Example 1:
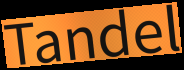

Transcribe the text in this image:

Tandel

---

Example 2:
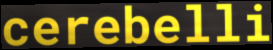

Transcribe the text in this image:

cerebelli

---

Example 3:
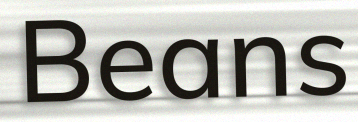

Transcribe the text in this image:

Beans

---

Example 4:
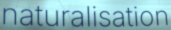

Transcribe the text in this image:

naturalisation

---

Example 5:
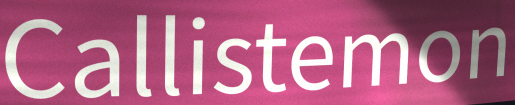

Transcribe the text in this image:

Callistemon